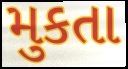
મુકતા